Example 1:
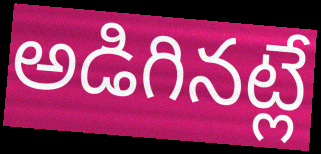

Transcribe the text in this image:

అడిగినట్లే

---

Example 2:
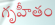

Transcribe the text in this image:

గృహీతం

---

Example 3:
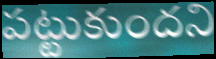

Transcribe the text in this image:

పట్టుకుందని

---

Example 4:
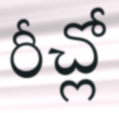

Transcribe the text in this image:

రీచ్లో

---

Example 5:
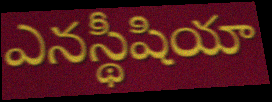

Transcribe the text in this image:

ఎనస్థీషియా